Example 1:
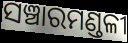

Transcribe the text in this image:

ସଞ୍ଚାରମଣ୍ଡଳୀ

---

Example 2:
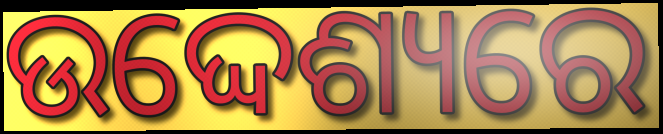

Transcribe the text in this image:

ଉଦ୍ଦେଶ୍ୟରେ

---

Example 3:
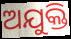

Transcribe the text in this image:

ଅଯୁକ୍ତି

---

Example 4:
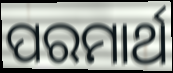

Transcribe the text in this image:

ପରମାର୍ଥ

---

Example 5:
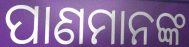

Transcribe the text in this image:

ପାଣମାନଙ୍କ